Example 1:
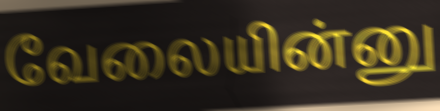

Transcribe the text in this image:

வேலையின்னு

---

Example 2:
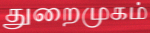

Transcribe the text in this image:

துறைமுகம்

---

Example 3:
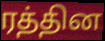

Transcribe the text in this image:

ரத்தின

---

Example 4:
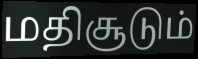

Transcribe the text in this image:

மதிசூடும்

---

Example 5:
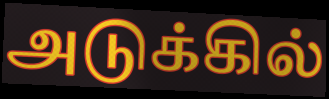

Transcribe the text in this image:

அடுக்கில்